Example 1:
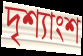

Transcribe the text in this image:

দৃশ্যাংশ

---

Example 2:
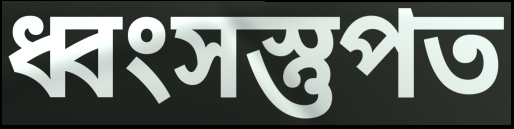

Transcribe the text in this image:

ধ্বংসস্তুপত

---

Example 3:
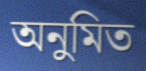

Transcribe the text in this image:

অনুমিত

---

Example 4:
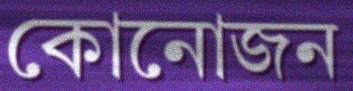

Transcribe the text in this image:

কোনোজন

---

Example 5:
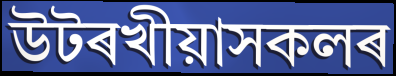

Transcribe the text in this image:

উটৰখীয়াসকলৰ